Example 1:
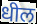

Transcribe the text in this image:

धील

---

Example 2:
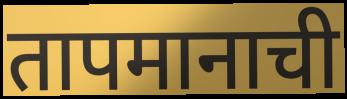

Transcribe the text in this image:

तापमानाची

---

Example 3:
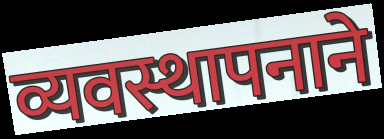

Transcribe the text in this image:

व्यवस्थापनाने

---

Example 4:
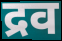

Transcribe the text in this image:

द्रव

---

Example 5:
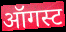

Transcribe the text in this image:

ऑगस्ट